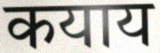
कयाय